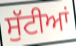
ਸੁੱਟੀਆਂ